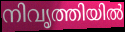
നിവൃത്തിയിൽ